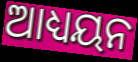
ଆଧ୍ୟୟନ